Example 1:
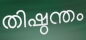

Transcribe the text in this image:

തിഷ്ഠന്തം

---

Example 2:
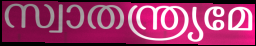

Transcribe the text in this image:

സ്വാതന്ത്ര്യമേ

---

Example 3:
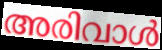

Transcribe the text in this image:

അരിവാൾ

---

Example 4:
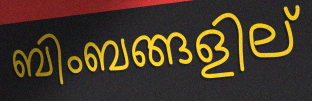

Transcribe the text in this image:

ബിംബങ്ങളില്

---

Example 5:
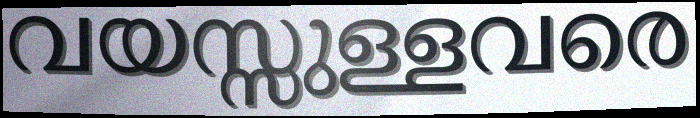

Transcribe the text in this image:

വയസ്സുള്ളവരെ